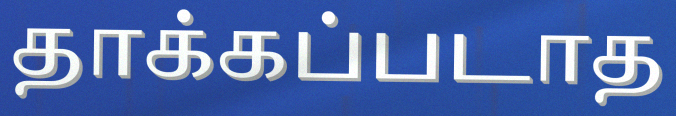
தாக்கப்படாத